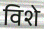
विशे